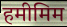
हमीमिम